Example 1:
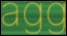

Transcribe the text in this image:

agg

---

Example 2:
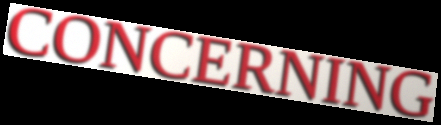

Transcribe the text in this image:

CONCERNING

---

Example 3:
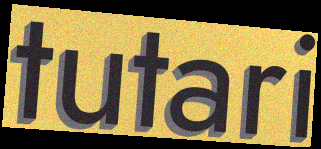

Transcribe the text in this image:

tutari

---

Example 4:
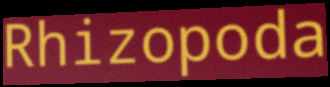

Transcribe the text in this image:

Rhizopoda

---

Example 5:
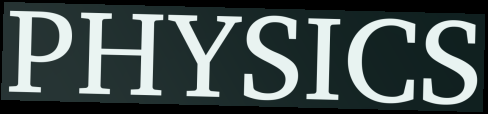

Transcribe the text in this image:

PHYSICS